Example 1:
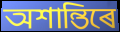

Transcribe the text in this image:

অশান্তিৰে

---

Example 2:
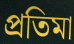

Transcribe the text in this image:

প্ৰতিমা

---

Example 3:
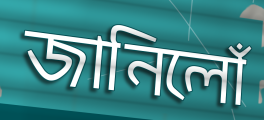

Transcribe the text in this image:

জানিলোঁ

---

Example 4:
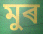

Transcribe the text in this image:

মুৰ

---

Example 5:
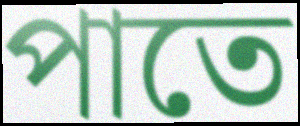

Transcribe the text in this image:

পাতে